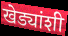
खेड्यांशी